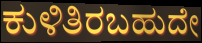
ಕುಳಿತಿರಬಹುದೇ